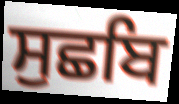
ਸੁਛਬਿ